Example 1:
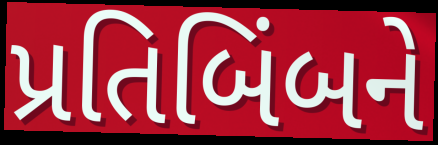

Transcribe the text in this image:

પ્રતિબિંબને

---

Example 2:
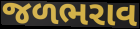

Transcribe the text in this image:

જળભરાવ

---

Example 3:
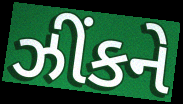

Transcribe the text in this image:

ઝીંકને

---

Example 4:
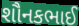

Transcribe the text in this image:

શૌનકભાઈ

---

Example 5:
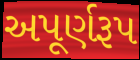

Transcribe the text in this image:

અપૂર્ણરૂપ